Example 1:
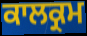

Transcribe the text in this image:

ਕਾਲਕ੍ਰਮ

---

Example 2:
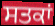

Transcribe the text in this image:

ਸਤਕਾਂ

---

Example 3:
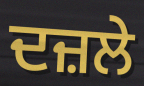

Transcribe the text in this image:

ਦਜ਼ਲੇ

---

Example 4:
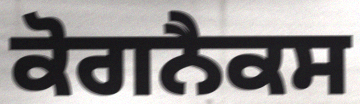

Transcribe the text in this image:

ਕੋਗਨੈਕਸ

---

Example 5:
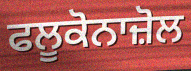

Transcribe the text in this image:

ਫਲੂਕੋਨਾਜ਼ੋਲ